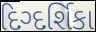
દિગ્દર્શિકા